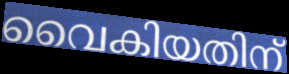
വൈകിയതിന്